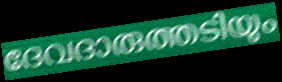
ദേവദാരുത്തടിയും